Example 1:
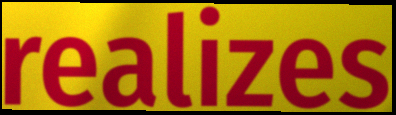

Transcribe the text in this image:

realizes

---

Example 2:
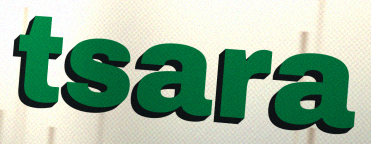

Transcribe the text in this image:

tsara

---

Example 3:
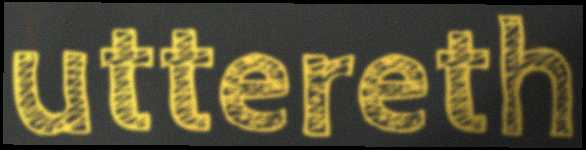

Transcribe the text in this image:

uttereth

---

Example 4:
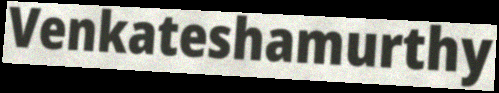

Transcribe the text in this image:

Venkateshamurthy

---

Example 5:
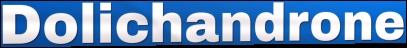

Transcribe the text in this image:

Dolichandrone